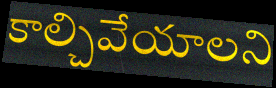
కాల్చివేయాలని